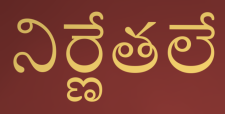
నిర్ణేతలే